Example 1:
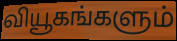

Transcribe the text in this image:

வியூகங்களும்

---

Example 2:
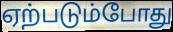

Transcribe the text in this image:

ஏற்படும்போது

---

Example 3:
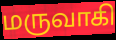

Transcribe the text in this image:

மருவாகி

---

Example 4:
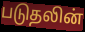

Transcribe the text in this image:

படுதலின்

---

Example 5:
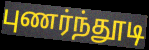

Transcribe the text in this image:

புணர்ந்தூடி